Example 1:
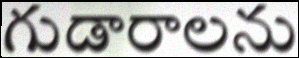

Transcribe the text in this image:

గుడారాలను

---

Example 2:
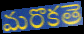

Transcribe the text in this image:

మరొకతె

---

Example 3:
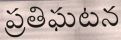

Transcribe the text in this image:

ప్రతిఘటన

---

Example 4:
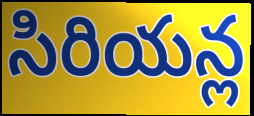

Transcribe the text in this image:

సిరియన్ల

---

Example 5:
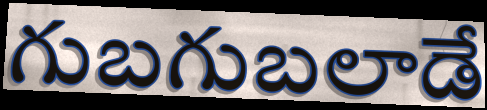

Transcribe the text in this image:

గుబగుబలాడే